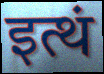
इत्थं